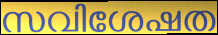
സവിശേഷത